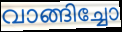
വാങ്ങിച്ചോ